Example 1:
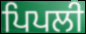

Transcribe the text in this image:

ਪਿਪਲੀ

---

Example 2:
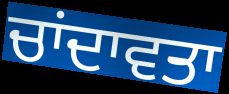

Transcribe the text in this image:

ਚਾਂਦਾਵਤਾ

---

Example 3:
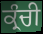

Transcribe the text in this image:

ਕ੍ਰੰਚੀ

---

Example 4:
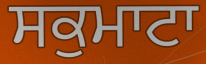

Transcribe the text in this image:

ਸਕੁਮਾਟਾ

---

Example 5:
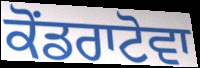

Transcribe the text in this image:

ਕੋਂਡਰਾਟੋਵਾ